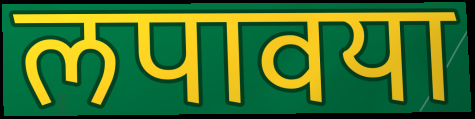
लपावया